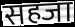
सहजा